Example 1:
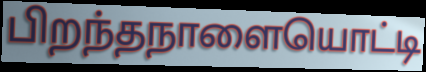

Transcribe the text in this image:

பிறந்தநாளையொட்டி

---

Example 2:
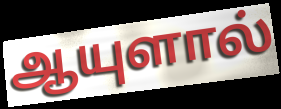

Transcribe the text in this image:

ஆயுளால்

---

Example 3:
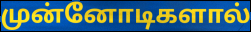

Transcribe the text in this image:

முன்னோடிகளால்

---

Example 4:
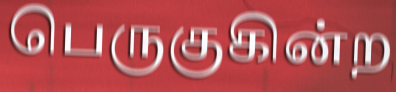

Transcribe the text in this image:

பெருகுகின்ற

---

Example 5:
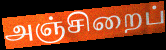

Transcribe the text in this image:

அஞ்சிறைப்